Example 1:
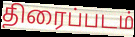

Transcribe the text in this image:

திரைப்படம்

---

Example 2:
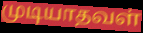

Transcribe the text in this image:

முடியாதவள்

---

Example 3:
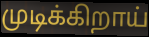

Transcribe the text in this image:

முடிக்கிறாய்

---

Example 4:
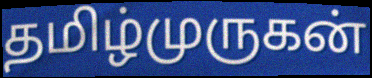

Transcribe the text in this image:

தமிழ்முருகன்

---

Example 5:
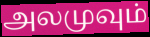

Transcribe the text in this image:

அலமுவும்